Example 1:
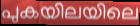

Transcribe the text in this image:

പുകയിലയിലെ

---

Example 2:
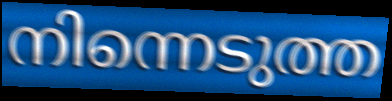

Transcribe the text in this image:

നിന്നെടുത്ത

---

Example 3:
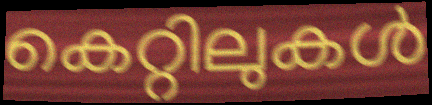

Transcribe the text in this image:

കെറ്റിലുകൾ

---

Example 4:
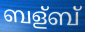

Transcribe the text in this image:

ബള്ബ്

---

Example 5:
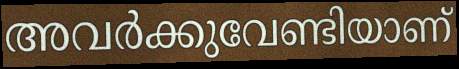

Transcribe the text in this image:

അവർക്കുവേണ്ടിയാണ്